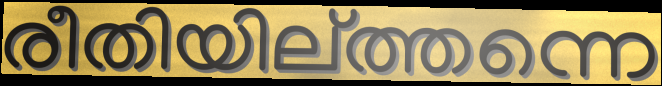
രീതിയില്ത്തന്നെ